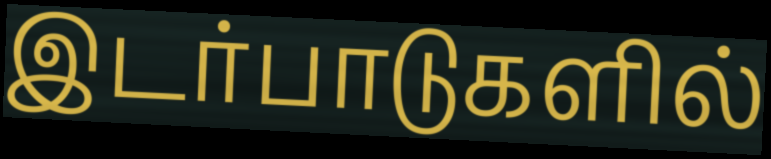
இடர்பாடுகளில்